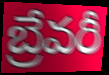
బ్రేవరీ